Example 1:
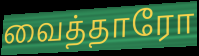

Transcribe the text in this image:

வைத்தாரோ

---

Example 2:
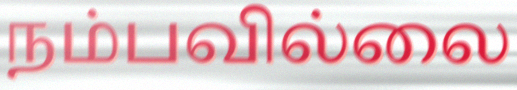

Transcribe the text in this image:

நம்பவில்லை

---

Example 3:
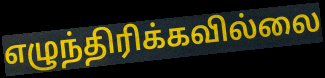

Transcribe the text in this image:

எழுந்திரிக்கவில்லை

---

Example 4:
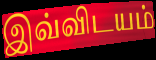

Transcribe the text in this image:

இவ்விடயம்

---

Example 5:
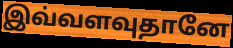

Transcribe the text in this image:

இவ்வளவுதானே